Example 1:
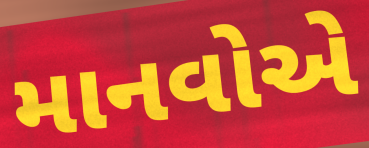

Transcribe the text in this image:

માનવોએ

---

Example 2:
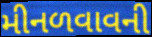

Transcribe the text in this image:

મીનળવાવની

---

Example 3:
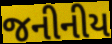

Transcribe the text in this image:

જનીનીય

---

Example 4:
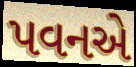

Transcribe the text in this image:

પવનએ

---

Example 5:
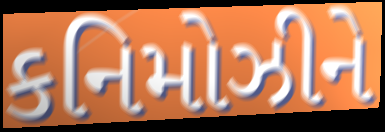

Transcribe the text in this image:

કનિમોઝીને